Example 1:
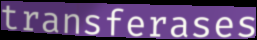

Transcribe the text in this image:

transferases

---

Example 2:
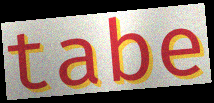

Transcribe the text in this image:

tabe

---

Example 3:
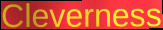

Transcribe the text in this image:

Cleverness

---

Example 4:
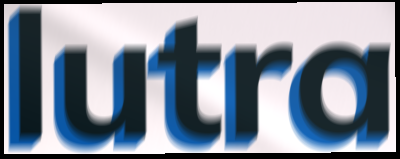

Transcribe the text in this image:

lutra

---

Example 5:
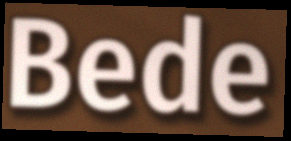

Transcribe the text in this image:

Bede